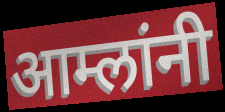
आम्लांनी